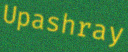
Upashray